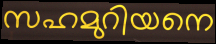
സഹമുറിയനെ